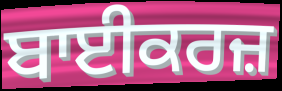
ਬਾਈਕਰਜ਼